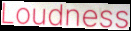
Loudness